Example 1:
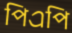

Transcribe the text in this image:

পিএপি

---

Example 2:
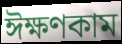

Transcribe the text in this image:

ঈক্ষণকাম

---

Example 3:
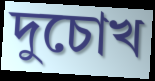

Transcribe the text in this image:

দুচোখ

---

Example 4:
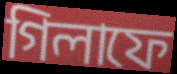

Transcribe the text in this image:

গিলাফে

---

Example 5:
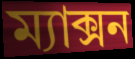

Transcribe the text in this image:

ম্যাক্সন